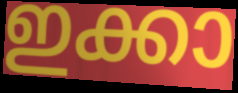
ഇക്കാ